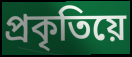
প্ৰকৃতিয়ে